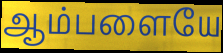
ஆம்பளையே